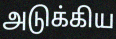
அடுக்கிய